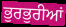
ਭੁਰਭੁਰੀਆਂ